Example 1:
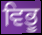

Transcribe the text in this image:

ਵਿਭੂ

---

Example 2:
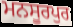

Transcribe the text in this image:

ਮਨਸੂਰਪੁਰ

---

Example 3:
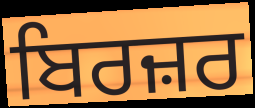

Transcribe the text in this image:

ਬਿਰਜ਼ਰ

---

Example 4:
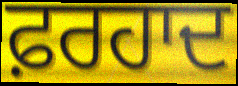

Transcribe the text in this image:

ਫ਼ਰਹਾਦ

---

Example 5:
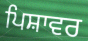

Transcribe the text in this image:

ਪਿਸ਼ਾਵਰ